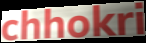
chhokri